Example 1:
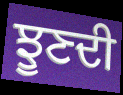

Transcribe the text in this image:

ਝੂਣਦੀ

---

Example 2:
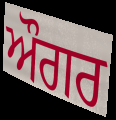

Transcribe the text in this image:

ਔਗਰ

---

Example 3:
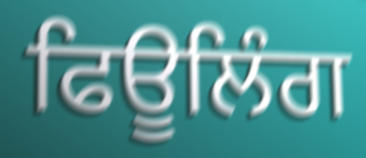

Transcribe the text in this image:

ਫਿਊਲਿੰਗ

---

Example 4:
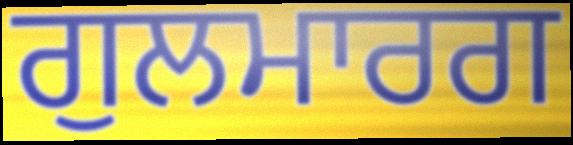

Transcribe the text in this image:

ਗੁਲਮਾਰਗ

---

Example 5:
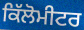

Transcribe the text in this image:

ਕਿੱਲੋਮੀਟਰ